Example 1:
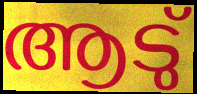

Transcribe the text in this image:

ആടു്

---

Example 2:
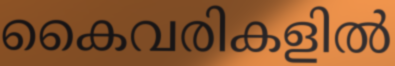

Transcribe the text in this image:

കൈവരികളിൽ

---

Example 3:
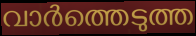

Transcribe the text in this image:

വാർത്തെടുത്ത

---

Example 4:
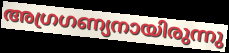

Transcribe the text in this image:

അഗ്രഗണ്യനായിരുന്നു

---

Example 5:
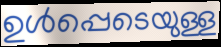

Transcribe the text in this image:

ഉൾപ്പെടെയുള്ള